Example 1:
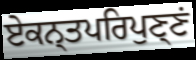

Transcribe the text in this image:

ਏਕਨ੍ਤਪਰਿਪੁਣ੍ਣਂ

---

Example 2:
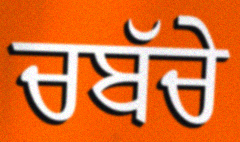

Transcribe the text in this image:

ਚਬੱਚੇ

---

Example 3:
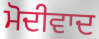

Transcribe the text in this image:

ਮੋਦੀਵਾਦ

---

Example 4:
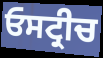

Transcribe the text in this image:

ਓਸਟ੍ਰੀਚ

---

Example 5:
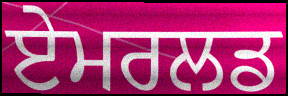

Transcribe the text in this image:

ਏਮਰਲਡ